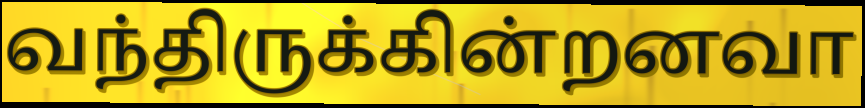
வந்திருக்கின்றனவா